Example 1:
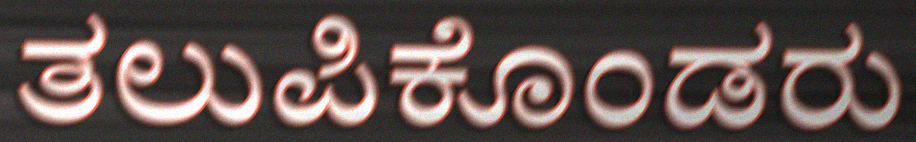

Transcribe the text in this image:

ತಲುಪಿಕೊಂಡರು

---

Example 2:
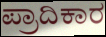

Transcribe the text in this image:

ಪ್ರಾದಿಕಾರ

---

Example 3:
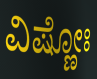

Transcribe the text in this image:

ವಿಷ್ಣೋಃ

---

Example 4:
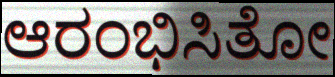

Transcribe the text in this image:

ಆರಂಭಿಸಿತೋ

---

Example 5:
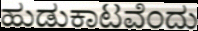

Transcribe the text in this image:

ಹುಡುಕಾಟವೆಂದು